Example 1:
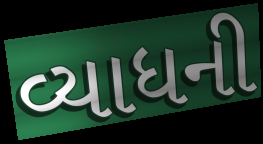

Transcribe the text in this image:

વ્યાધની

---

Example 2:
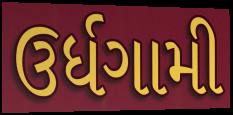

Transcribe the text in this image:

ઉર્ધગામી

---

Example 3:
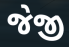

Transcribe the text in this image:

જેજી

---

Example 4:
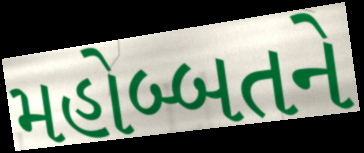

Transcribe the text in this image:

મહોબ્બતને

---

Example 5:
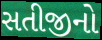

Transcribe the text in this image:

સતીજીનો